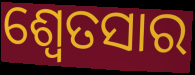
ଶ୍ଵେତସାର